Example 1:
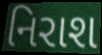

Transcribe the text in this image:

નિરાશ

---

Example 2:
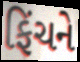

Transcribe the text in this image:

ફિંચને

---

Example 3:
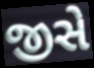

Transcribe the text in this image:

જીસે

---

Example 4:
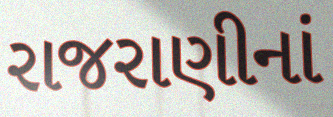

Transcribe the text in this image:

રાજરાણીનાં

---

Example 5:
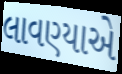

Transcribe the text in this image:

લાવણ્યાએ